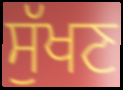
ਸੁੱਖਣ